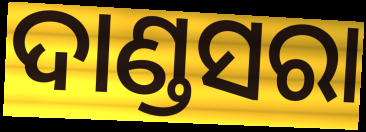
ଦାଣ୍ଡସରା